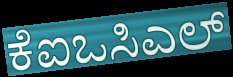
ಕೆಐಒಸಿಎಲ್